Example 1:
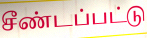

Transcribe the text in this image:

சீண்டப்பட்டு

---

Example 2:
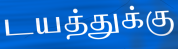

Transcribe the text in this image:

டயத்துக்கு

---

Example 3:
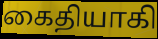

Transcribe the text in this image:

கைதியாகி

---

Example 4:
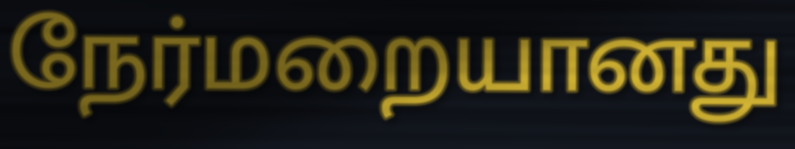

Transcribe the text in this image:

நேர்மறையானது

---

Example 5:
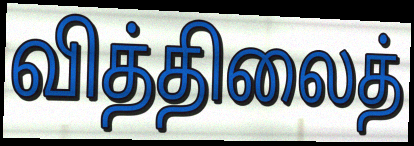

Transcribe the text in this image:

வித்திலைத்